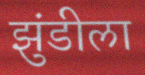
झुंडीला